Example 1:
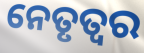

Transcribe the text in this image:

ନେତୃତ୍ବର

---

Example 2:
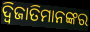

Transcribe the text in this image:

ଦ୍ୱିଜାତିମାନଙ୍କର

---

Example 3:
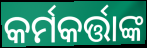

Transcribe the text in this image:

କର୍ମକର୍ତ୍ତାଙ୍କ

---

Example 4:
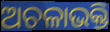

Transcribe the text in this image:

ଅଚଳାଭକ୍ତି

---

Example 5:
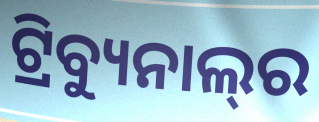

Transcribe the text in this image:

ଟ୍ରିବ୍ୟୁନାଲ୍‍ର